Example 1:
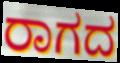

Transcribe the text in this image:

ರಾಗದ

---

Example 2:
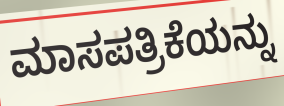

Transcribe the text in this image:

ಮಾಸಪತ್ರಿಕೆಯನ್ನು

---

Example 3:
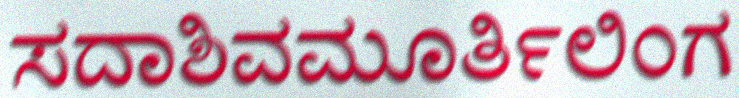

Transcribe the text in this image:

ಸದಾಶಿವಮೂರ್ತಿಲಿಂಗ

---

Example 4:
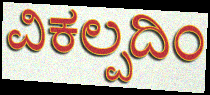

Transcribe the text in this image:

ವಿಕಲ್ಪದಿಂ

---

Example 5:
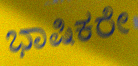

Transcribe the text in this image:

ಭಾಷಿಕರೇ